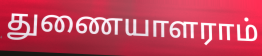
துணையாளராம்